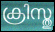
ക്രിസ്തു